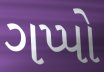
ગપ્પો